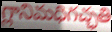
గ్లానిమధిగచ్ఛతి